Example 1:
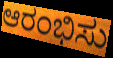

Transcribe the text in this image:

ಆರಂಭಿಸು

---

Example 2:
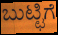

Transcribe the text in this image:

ಬುಟ್ಟಿಗೆ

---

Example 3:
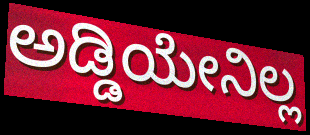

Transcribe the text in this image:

ಅಡ್ಡಿಯೇನಿಲ್ಲ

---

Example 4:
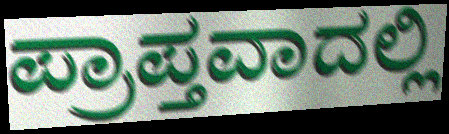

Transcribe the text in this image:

ಪ್ರಾಪ್ತವಾದಲ್ಲಿ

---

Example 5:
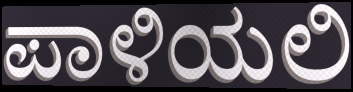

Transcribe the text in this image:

ಪಾಳಿಯಲಿ